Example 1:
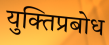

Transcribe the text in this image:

युक्तिप्रबोध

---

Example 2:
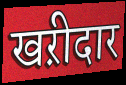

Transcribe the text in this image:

खऱीदार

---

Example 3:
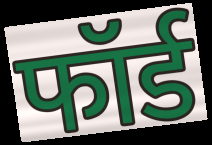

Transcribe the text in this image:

फॉर्ड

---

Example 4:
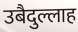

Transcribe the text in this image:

उबैदुल्लाह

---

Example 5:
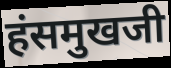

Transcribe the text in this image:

हंसमुखजी